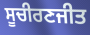
ਸੂਚੀਰਣਜੀਤ